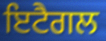
ਇਟੈਗਲ